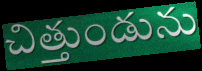
చిత్తుండును